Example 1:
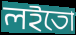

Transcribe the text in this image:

লইতো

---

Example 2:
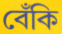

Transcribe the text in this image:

বেঁকি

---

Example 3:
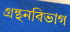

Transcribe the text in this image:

গ্রন্থনবিভাগ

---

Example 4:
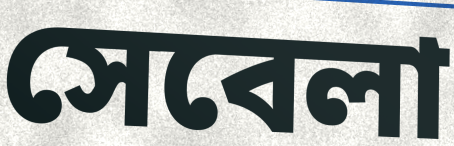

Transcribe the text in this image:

সেবেলা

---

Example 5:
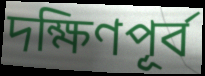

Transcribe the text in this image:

দক্ষিণপূর্ব